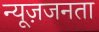
न्यूज़जनता